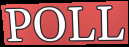
POLL